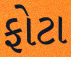
ફોટા